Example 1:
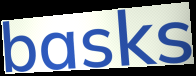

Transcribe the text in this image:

basks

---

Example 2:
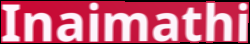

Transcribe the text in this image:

Inaimathi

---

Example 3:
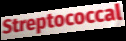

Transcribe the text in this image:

Streptococcal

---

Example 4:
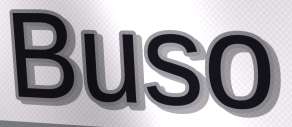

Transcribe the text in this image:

Buso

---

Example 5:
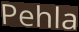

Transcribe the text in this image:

Pehla